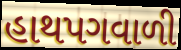
હાથપગવાળી